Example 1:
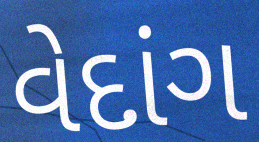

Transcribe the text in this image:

વેદાંગ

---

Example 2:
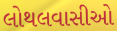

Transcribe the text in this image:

લોથલવાસીઓ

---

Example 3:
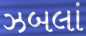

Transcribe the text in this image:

ઝબલાં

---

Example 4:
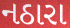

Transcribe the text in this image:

નઠારા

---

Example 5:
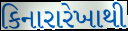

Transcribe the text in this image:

કિનારારેખાથી